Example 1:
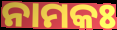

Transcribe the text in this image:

ନାମକଃ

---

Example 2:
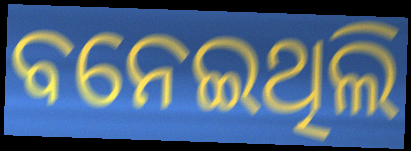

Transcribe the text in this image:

ବନେଇଥିଲି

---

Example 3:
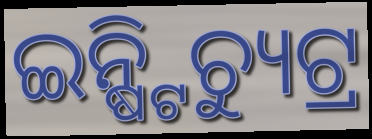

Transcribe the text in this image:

ଇନ୍ଷ୍ଟିଚ୍ୟୁଟ୍ର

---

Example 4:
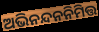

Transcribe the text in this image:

ଅଭିନନ୍ଦନନିମିତ୍ତ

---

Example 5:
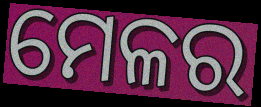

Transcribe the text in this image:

ମେଳର